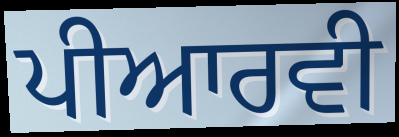
ਪੀਆਰਵੀ